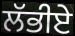
ਲੱਭੀਏ